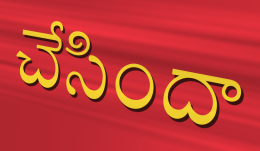
చేసిందా